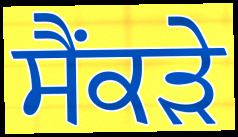
ਸੈਂਕੜੇ